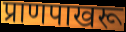
प्राणपाखरू